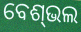
ବେଶ୍‌ଭଲ